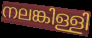
നലങ്കിള്ളി